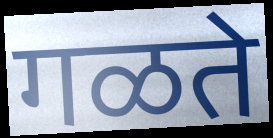
गळते